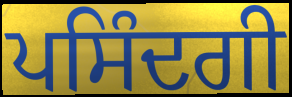
ਪਸਿੰਦਗੀ